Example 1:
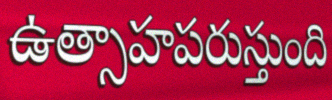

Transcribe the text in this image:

ఉత్సాహపరుస్తుంది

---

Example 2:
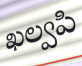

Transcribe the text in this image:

ఖల్వపి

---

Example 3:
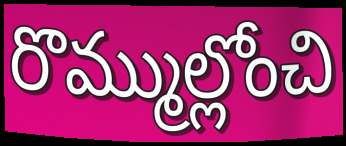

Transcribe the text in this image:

రొమ్ముల్లోంచి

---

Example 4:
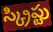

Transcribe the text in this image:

స్క్రిప్టు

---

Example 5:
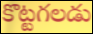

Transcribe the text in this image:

కొట్టగలడు